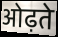
ओढ़ते